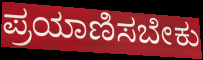
ಪ್ರಯಾಣಿಸಬೇಕು